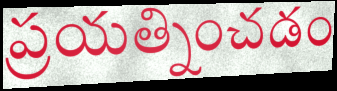
ప్రయత్నించడం